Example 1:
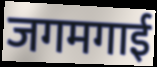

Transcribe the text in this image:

जगमगाई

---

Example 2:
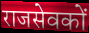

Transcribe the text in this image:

राजसेवकों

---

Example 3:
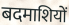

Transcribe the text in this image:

बदमाशियों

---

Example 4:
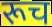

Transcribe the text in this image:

रूच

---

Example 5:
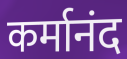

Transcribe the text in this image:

कर्मानंद